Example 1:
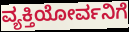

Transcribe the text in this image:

ವ್ಯಕ್ತಿಯೋರ್ವನಿಗೆ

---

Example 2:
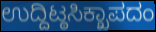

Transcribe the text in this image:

ಉದ್ದಿಟ್ಠಸಿಕ್ಖಾಪದಂ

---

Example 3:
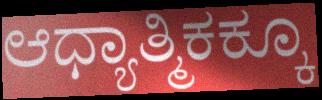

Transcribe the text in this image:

ಆಧ್ಯಾತ್ಮಿಕಕ್ಕೂ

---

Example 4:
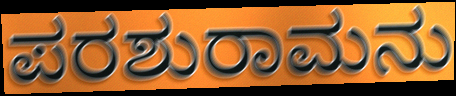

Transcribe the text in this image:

ಪರಶುರಾಮನು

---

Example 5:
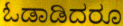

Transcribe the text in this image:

ಓಡಾಡಿದರೂ